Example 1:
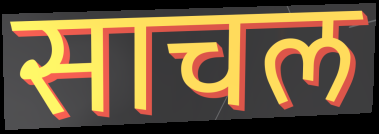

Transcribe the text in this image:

साचल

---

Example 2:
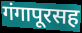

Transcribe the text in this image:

गंगापूरसह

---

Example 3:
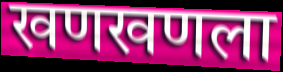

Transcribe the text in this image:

खणखणला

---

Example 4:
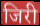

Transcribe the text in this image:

जिरी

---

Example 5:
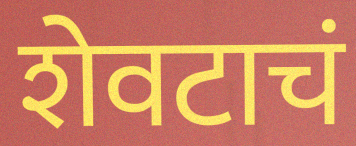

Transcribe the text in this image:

शेवटाचं